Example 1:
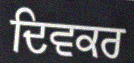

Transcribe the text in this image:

ਦਿਵਕਰ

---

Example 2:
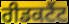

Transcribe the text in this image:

ਰੀਡਕਟੈਂਟ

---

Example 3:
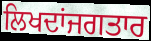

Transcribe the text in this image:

ਲਿਖਦਾਂਜਗਤਾਰ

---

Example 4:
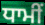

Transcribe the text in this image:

ਧਾਮੀਂ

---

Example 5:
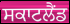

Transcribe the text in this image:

ਸਕਾਟਲੈਂਡ